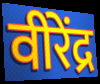
वीरेंद्र